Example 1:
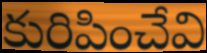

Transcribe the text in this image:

కురిపించేవి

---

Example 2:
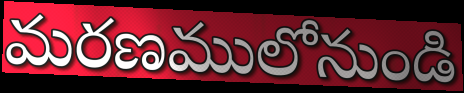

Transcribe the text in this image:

మరణములోనుండి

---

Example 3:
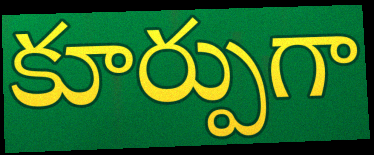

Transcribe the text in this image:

కూర్పుగా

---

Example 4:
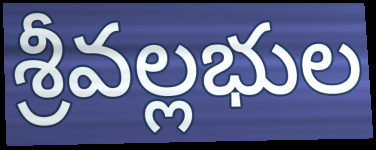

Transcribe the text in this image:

శ్రీవల్లభుల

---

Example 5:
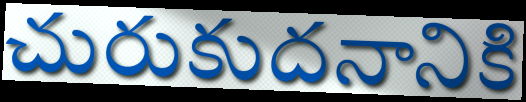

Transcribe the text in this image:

చురుకుదనానికి